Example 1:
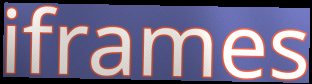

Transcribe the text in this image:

iframes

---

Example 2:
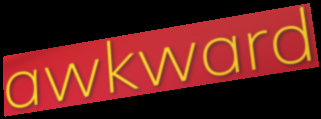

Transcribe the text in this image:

awkward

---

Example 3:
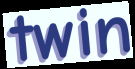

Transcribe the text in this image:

twin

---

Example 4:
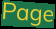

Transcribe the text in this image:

Page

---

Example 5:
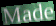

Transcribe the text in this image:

Made